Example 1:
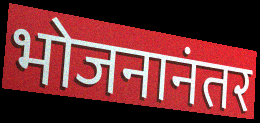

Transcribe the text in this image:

भोजनानंतर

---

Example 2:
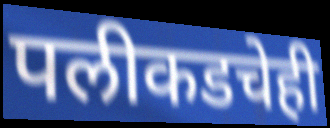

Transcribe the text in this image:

पलीकडचेही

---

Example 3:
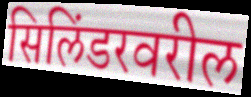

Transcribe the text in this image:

सिलिंडरवरील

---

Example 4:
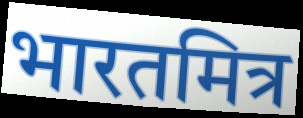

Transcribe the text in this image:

भारतमित्र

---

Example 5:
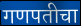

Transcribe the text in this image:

गणपतीचा